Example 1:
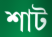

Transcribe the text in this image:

শাট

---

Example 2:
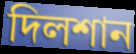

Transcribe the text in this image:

দিলশান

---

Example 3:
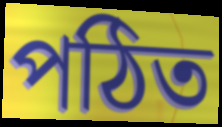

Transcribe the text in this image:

পঠিত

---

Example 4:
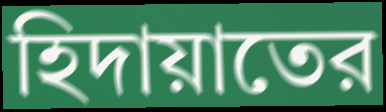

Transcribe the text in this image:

হিদায়াতের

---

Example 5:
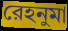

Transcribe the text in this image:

রেহনুমা